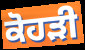
ਕੋਹੜੀ